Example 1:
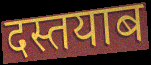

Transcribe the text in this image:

दस्तयाब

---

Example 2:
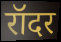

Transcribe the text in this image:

रॉदर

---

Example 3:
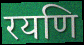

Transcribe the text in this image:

रयणि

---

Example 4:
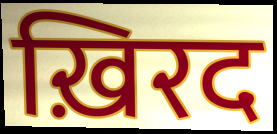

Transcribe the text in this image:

ख़िरद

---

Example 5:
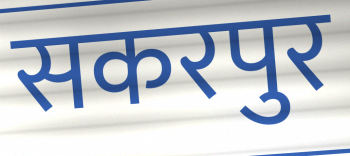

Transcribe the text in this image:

सकरपुर